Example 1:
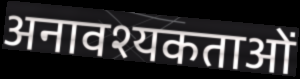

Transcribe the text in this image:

अनावश्यकताओं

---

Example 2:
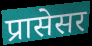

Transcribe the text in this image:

प्रासेसर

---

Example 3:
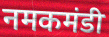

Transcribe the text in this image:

नमकमंडी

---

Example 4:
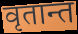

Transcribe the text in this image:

वृतान्त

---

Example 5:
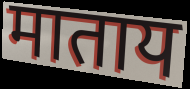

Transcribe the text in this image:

माताय